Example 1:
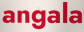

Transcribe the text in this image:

angala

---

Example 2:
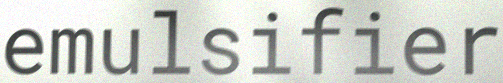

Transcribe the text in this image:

emulsifier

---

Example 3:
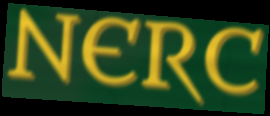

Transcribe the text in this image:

NERC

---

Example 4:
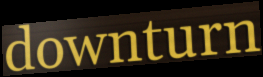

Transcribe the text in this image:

downturn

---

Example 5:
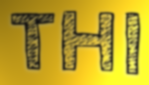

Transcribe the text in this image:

THI